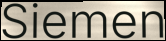
Siemen